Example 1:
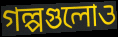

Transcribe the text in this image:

গল্পগুলোও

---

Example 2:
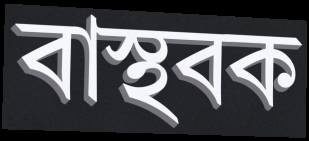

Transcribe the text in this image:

বাস্থবক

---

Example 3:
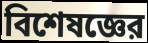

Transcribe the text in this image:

বিশেষজ্ঞের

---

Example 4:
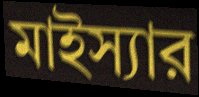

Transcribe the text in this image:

মাইস্যার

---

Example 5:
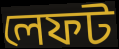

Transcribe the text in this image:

লেফট